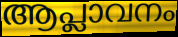
ആപ്ലാവനം